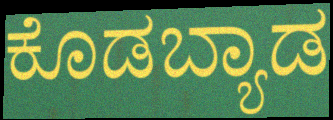
ಕೊಡಬ್ಯಾಡ